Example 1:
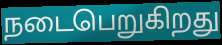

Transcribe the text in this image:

நடைபெறுகிறது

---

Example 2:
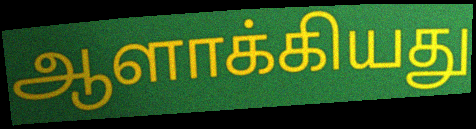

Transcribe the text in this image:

ஆளாக்கியது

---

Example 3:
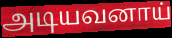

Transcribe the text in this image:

அடியவனாய்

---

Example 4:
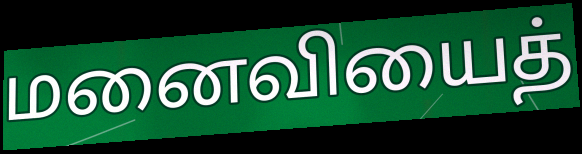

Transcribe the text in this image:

மனைவியைத்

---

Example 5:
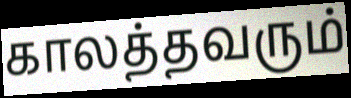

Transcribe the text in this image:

காலத்தவரும்